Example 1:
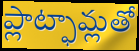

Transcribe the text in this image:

ప్లాట్ఫామ్లతో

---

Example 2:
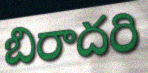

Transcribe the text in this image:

బిరాదరి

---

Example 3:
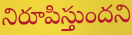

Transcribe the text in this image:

నిరూపిస్తుందని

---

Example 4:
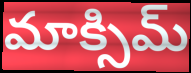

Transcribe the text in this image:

మాక్సిమ్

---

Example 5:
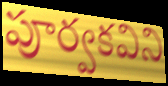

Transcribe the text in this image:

పూర్వకవిని